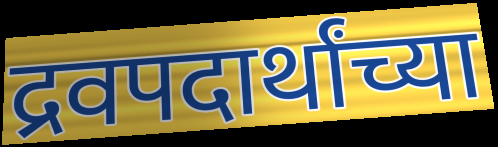
द्रवपदार्थांच्या